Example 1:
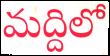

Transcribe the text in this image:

మద్దిలో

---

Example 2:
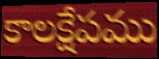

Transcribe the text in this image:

కాలక్షేపము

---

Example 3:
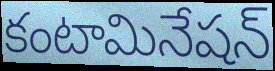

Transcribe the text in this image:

కంటామినేషన్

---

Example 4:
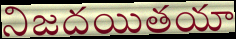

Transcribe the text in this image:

నిజదయితయా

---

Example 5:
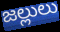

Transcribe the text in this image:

జల్లులు